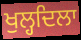
ਖੁਲ੍ਹਦਿਲਾ